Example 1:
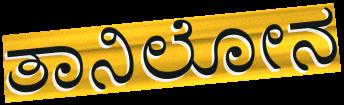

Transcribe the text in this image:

ತಾನಿಲೋನ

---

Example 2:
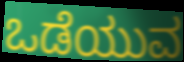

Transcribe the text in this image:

ಒಡೆಯುವ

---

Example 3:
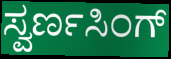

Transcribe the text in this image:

ಸ್ವರ್ಣಸಿಂಗ್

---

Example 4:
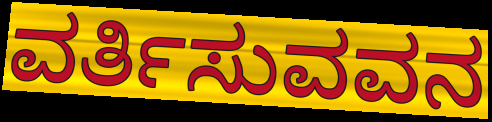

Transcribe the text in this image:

ವರ್ತಿಸುವವನ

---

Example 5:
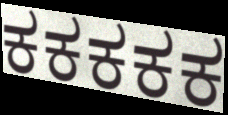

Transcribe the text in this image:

ಕಕಕಕಕ